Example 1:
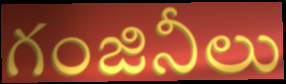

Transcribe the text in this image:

గంజినీలు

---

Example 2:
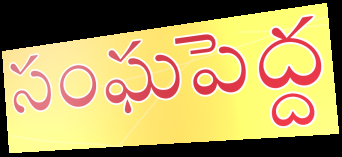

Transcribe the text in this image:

సంఘపెద్ద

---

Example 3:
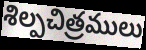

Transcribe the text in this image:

శిల్పచిత్రములు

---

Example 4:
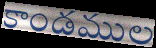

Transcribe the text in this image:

కాండముల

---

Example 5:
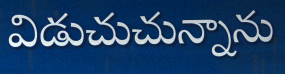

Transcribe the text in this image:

విడుచుచున్నాను